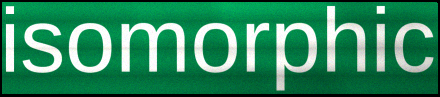
isomorphic